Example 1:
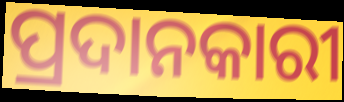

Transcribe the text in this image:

ପ୍ରଦାନକାରୀ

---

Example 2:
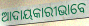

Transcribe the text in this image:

ଆଦାୟକାରୀଭାବେ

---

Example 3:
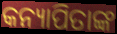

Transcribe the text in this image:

କନ୍ୟାପିତାଙ୍କ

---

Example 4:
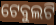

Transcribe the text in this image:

ଟେବୁଲଟି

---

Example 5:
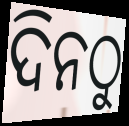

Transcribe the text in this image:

ଦିନଠୁ